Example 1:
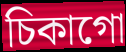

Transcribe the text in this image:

চিকাগো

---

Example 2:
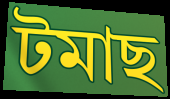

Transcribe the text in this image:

টমাছ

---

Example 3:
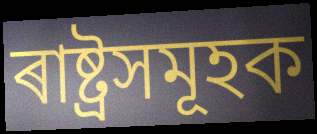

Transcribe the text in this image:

ৰাষ্ট্ৰসমূহক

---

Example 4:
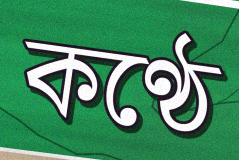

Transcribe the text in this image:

কণ্ঠে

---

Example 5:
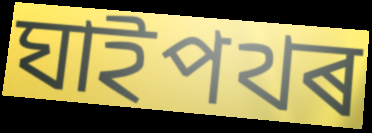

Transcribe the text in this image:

ঘাইপথৰ